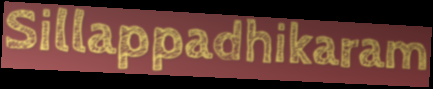
Sillappadhikaram